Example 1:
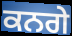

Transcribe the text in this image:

ਕਨਗੇ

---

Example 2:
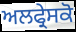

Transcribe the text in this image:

ਅਲਫ੍ਰੇਸਕੋ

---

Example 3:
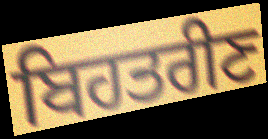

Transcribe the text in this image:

ਬਿਹਤਰੀਣ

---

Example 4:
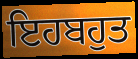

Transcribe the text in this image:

ਇਹਬਹੁਤ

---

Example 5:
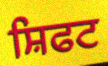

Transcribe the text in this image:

ਸ਼ਿਫਟ